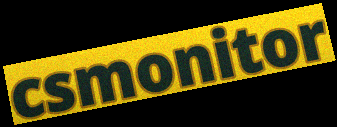
csmonitor